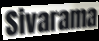
Sivarama